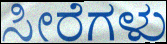
ಸೀರೆಗಳು